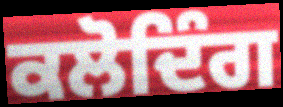
ਕਲੋਦਿੰਗ